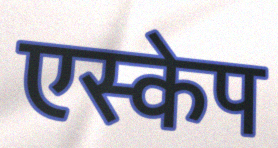
एस्केप